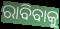
ରାବିବାକୁ